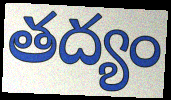
తద్యం